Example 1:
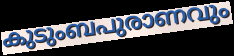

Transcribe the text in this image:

കുടുംബപുരാണവും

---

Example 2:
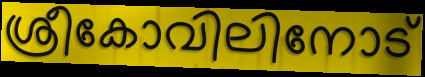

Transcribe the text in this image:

ശ്രീകോവിലിനോട്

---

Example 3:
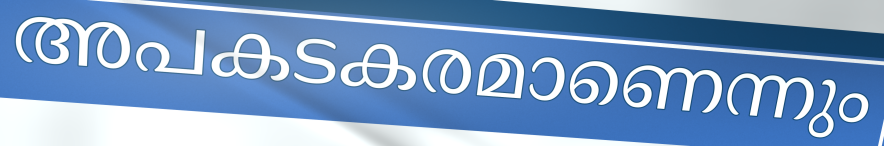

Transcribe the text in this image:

അപകടകരമാണെന്നും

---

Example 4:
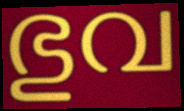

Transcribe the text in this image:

ഭുവ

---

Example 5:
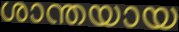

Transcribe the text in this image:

ശാന്തയായ